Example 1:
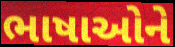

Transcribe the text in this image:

ભાષાઓને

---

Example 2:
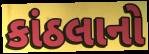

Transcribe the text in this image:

કાંઠલાનો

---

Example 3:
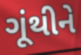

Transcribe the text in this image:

ગૂંથીને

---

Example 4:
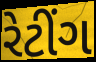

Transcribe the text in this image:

રેટીંગ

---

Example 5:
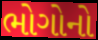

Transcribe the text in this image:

ભોગોનો